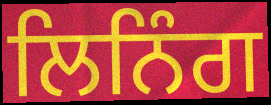
ਲਿਨਿੰਗ